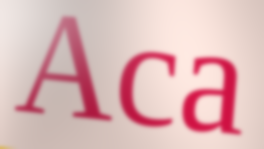
Aca